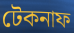
টেকনাফ